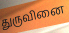
துருவினை